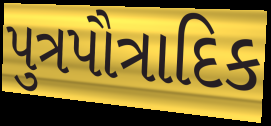
પુત્રપૌત્રાદિક